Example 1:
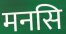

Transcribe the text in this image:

मनसि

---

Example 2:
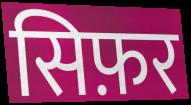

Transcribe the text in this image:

सिफ़र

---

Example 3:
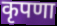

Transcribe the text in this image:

कृपणा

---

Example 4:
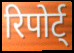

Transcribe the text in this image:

रिपोर्ट्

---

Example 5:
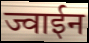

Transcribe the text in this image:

ज्वाईन